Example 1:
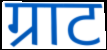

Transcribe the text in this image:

ग्राट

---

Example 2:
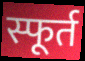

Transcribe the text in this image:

स्‍फूर्त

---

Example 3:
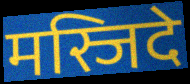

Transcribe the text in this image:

मस्जिदे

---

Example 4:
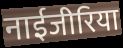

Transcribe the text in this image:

नाईजीरिया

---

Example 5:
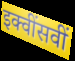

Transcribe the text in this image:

इक्वींसवीं